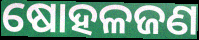
ଷୋହଳଜଣ